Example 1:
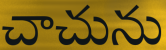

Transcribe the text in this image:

చాచును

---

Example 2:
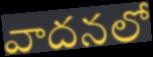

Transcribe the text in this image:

వాదనలో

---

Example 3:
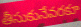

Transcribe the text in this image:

తీసుకునేవరకూ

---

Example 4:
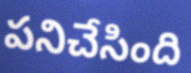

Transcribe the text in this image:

పనిచేసింది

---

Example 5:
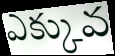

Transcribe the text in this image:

ఎక్కువ